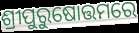
ଶ୍ରୀପୁରୁଷୋତ୍ତମରେ